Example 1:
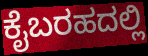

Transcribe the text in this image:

ಕೈಬರಹದಲ್ಲಿ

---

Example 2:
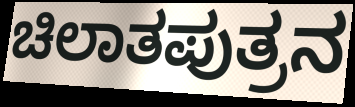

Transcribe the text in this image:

ಚಿಲಾತಪುತ್ರನ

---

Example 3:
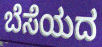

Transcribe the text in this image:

ಬೆಸೆಯದ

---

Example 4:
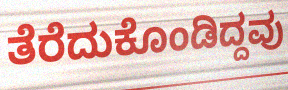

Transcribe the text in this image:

ತೆರೆದುಕೊಂಡಿದ್ದವು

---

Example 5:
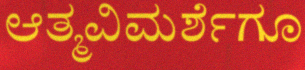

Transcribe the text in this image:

ಆತ್ಮವಿಮರ್ಶೆಗೂ